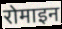
रोमाइन